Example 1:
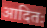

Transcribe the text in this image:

आदितः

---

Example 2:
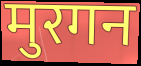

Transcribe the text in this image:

मुरगन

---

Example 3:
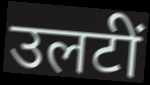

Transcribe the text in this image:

उलटीं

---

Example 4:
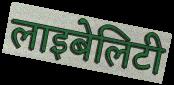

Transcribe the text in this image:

लाइबेलिटी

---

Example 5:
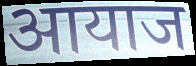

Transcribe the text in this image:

आयाज